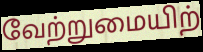
வேற்றுமையிற்